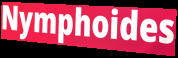
Nymphoides